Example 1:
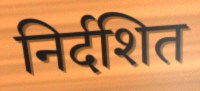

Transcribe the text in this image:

निर्दशित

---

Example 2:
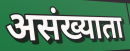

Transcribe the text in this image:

असंख्याता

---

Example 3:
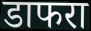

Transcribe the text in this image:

डाफरा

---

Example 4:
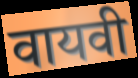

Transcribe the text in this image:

वायवी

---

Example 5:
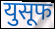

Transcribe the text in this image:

युसूफ